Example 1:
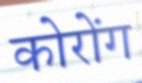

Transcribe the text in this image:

कोरोंग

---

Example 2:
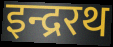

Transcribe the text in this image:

इन्द्ररथ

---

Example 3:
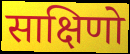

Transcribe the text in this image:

साक्षिणो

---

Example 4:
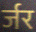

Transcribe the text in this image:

र्जर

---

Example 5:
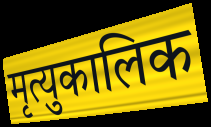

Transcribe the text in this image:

मृत्युकालिक